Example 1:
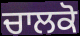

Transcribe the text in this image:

ਚਾਲਕੋ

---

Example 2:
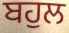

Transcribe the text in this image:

ਬਹੁਲ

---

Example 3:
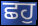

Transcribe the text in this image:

ਛਹੁ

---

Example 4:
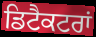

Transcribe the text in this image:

ਡਿਟੈਕਟਰਾਂ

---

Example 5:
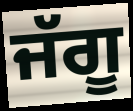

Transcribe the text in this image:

ਜੱਗੂ